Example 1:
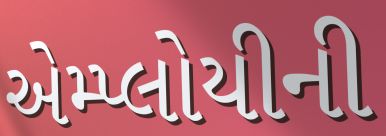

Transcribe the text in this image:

એમ્પ્લોયીની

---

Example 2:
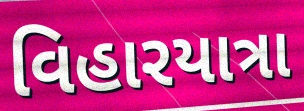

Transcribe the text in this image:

વિહારયાત્રા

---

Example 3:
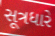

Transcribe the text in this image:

સૂત્રધારે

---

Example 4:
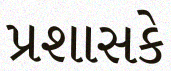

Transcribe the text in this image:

પ્રશાસકે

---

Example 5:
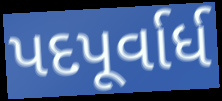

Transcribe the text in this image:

પદપૂર્વાર્ધ